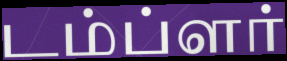
டம்ப்ளர்